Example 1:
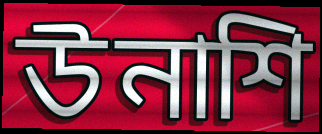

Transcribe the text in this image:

উনাশি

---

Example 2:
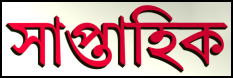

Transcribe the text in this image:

সাপ্তাহিক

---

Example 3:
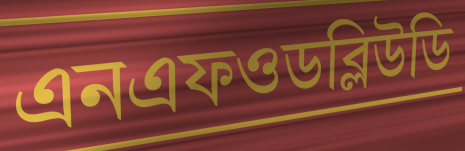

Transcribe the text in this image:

এনএফওডব্লিউডি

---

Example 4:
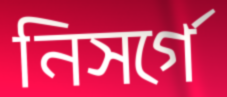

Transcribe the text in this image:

নিসর্গে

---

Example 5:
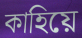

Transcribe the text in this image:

কাহিয়ে